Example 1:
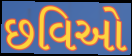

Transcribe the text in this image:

છવિઓ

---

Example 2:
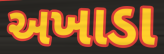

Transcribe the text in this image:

અખાડા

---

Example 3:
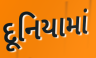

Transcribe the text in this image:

દૂનિયામાં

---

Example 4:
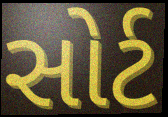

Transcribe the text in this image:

સોર્ટ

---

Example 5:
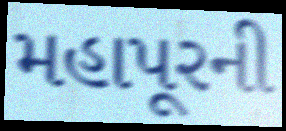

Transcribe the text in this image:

મહાપૂરની